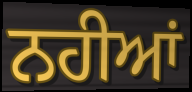
ਨਹੀਆਂ